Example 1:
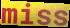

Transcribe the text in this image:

miss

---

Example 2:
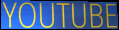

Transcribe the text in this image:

YOUTUBE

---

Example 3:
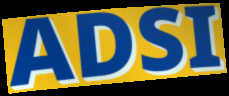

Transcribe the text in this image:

ADSI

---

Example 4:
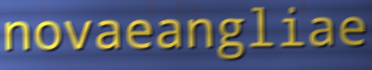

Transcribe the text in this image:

novaeangliae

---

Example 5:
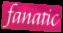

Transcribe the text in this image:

fanatic